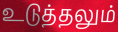
உடுத்தலும்